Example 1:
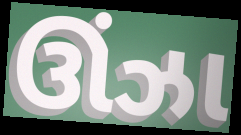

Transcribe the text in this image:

ઊંઝા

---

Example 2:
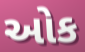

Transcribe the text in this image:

ઓક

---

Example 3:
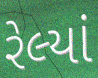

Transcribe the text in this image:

રેલ્યાં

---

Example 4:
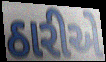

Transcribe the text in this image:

ઠારીએ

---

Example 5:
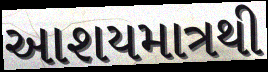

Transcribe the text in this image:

આશયમાત્રથી